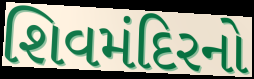
શિવમંદિરનો